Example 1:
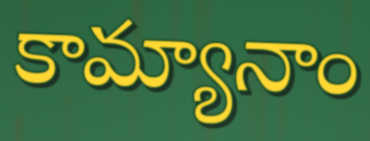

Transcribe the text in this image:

కామ్యానాం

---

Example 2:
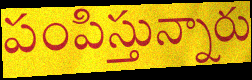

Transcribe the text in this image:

పంపిస్తున్నారు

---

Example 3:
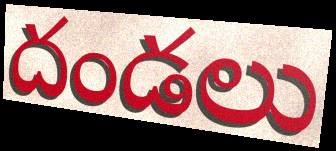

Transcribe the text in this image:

దండలు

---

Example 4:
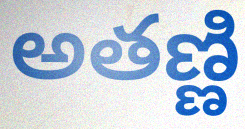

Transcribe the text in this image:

అతణ్ణి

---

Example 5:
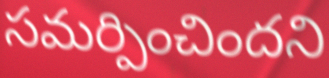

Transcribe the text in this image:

సమర్పించిందని